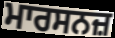
ਮਾਰਸਨਜ਼